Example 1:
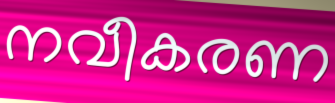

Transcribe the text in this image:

നവീകരണ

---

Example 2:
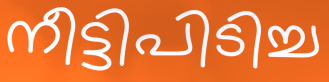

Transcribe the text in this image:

നീട്ടിപിടിച്ച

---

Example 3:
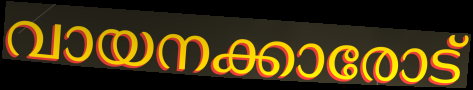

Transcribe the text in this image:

വായനക്കാരോട്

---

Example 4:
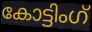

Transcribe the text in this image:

കോട്ടിംഗ്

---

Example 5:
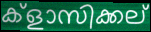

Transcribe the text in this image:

ക്ളാസിക്കല്